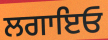
ਲਗਾਇਓ